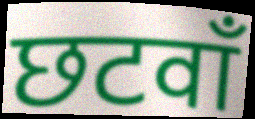
छटवाँ